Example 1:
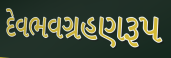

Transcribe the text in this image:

દેવભવગ્રહણરૂપ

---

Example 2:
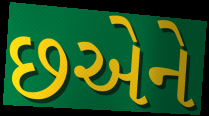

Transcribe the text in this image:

છએને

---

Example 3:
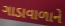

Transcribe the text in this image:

ગાડાવાળાને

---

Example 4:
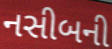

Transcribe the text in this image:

નસીબની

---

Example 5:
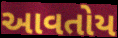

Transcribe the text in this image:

આવતોય